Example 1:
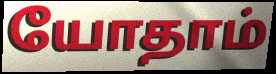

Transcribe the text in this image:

யோதாம்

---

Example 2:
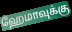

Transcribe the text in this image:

ஹேமாவுக்கு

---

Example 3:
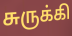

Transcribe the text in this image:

சுருக்கி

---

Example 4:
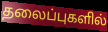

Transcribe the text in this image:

தலைப்புகளில்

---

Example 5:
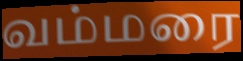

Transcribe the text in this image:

வம்மரை